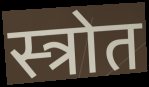
स्त्रोत